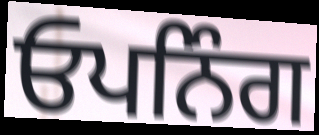
ਓਪਨਿੰਗ